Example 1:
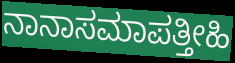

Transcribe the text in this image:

ನಾನಾಸಮಾಪತ್ತೀಹಿ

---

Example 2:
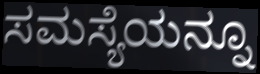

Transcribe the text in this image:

ಸಮಸ್ಯೆಯನ್ನೂ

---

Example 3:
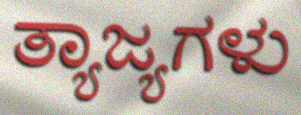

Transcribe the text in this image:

ತ್ಯಾಜ್ಯಗಳು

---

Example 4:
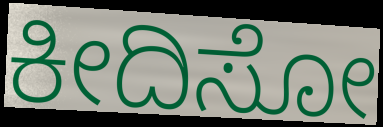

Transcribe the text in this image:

ಕೀದಿಸೋ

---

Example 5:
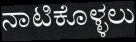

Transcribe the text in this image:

ನಾಟಿಕೊಳ್ಳಲು